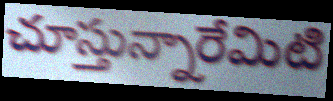
చూస్తున్నారేమిటి